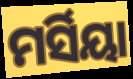
ମର୍ସିୟା